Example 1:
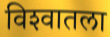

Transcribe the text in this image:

विश्‍वातला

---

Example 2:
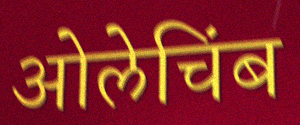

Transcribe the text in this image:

ओलेचिंब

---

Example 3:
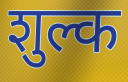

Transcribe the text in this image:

शुल्क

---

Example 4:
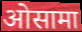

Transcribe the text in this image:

ओसामा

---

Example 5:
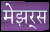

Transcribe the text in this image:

मेझर्स